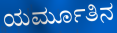
ಯರ್ಮೂತಿನ